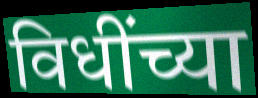
विधींच्या